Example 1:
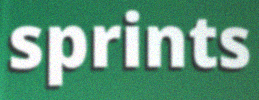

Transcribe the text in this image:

sprints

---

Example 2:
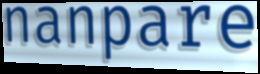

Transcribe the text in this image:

nanpare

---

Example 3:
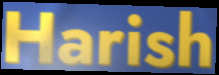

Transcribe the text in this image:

Harish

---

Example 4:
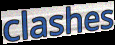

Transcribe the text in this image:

clashes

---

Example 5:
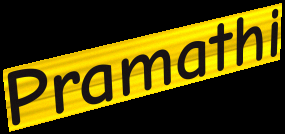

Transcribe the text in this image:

Pramathi